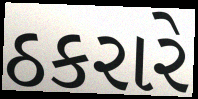
ઠકરારે